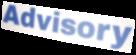
Advisory